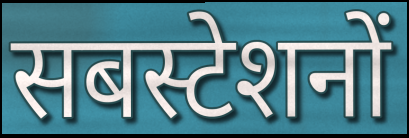
सबस्टेशनों